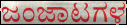
ಜಂಜಾಟಗಳ